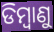
ଡିମ୍ୱାଣୁ